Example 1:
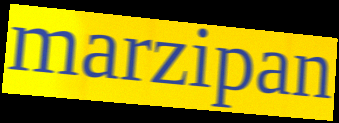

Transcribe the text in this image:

marzipan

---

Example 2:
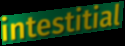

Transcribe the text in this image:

intestitial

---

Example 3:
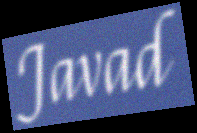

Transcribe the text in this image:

Javad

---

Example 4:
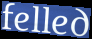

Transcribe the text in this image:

felled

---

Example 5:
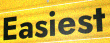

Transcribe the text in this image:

Easiest